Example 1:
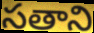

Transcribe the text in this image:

సతాని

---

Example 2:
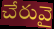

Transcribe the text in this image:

చేరువై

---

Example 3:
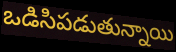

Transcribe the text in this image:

ఒడిసిపడుతున్నాయి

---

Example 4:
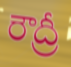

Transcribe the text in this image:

రౌద్రీ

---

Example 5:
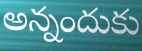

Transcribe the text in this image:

అన్నందుకు